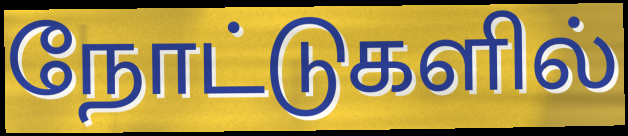
நோட்டுகளில்